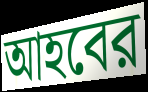
আহবের